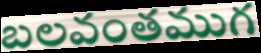
బలవంతముగ